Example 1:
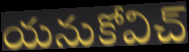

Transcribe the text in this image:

యనుకోవిచ్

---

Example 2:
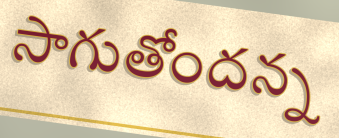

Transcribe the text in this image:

సాగుతోందన్న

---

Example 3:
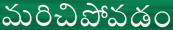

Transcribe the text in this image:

మరిచిపోవడం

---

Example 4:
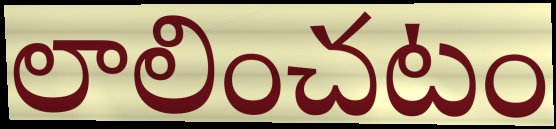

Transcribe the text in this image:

లాలించటం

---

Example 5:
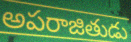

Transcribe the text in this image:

అపరాజితుడు